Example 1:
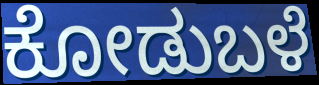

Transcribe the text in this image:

ಕೋಡುಬಳೆ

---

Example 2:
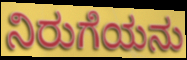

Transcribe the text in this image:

ನಿರುಗೆಯನು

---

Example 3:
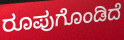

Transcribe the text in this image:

ರೂಪುಗೊಂಡಿದೆ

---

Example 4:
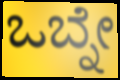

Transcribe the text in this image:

ಒಬ್ನೇ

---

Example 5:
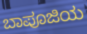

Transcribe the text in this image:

ಬಾಪೂಜಿಯ